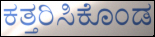
ಕತ್ತರಿಸಿಕೊಂಡ